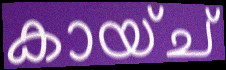
കായ്ച്